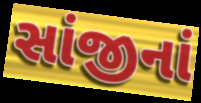
સાંજીનાં